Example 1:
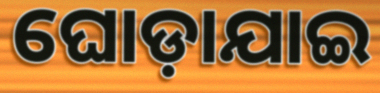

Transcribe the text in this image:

ଘୋଡ଼ାଯାଇ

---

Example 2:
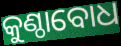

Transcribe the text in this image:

କୁଣ୍ଠାବୋଧ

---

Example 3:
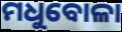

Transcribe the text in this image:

ମଧୁବୋଳା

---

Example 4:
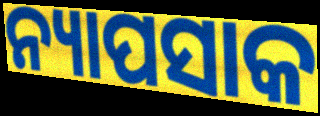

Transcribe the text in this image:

ନ୍ୟାପସାକ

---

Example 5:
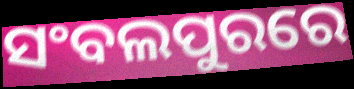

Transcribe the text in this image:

ସଂବଲପୁରରେ